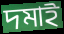
দমাই